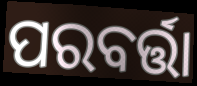
ପରବର୍ତ୍ତା